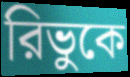
রিভুকে